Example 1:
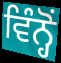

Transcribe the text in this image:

ਵਿੰਨ੍ਹੋਂ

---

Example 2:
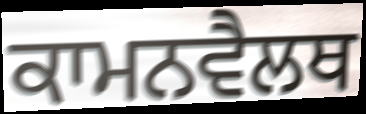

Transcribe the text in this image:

ਕਾਮਨਵੈਲਥ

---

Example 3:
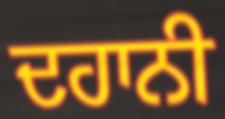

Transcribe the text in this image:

ਦਹਾਨੀ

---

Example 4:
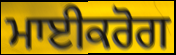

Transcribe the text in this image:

ਮਾਈਕਰੋਗ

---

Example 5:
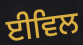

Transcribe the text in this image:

ਈਵਿਲ